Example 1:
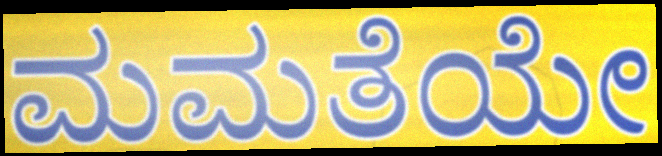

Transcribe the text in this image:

ಮಮತೆಯೇ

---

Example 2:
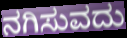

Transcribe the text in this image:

ನಗಿಸುವದು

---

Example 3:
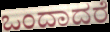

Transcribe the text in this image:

ಒಂದಾದರೆ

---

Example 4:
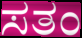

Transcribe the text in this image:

ಸತಂ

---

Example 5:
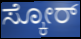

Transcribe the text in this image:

ಸ್ಕೋರ್